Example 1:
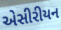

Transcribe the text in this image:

એસીરીયન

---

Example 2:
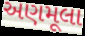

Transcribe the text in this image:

અણમૂલા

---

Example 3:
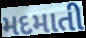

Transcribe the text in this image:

મદમાતી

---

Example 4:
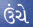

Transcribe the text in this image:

ઉંચે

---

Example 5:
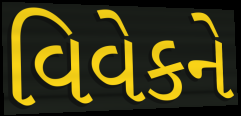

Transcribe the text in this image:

વિવેકને